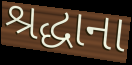
શ્રદ્ધાના